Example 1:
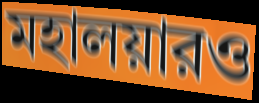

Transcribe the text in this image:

মহালয়ারও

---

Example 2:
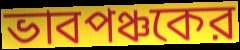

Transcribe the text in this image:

ভাবপঞ্চকের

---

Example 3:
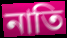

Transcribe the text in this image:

নাতি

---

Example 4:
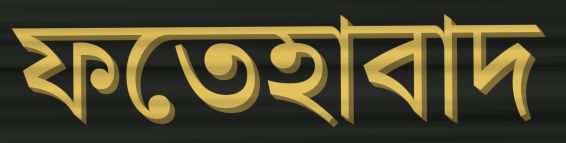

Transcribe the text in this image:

ফতেহাবাদ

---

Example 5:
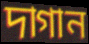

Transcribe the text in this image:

দাগান